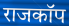
राजकॉप